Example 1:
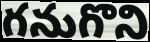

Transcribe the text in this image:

గనుగొని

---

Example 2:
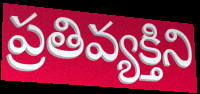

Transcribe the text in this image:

ప్రతివ్యక్తిని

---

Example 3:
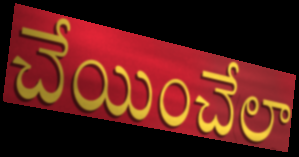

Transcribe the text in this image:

చేయించేలా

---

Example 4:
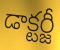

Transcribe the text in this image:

డాక్టర్జీ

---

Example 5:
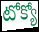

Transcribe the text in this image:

టోక్యో